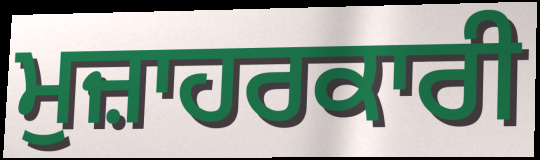
ਮੁਜ਼ਾਹਰਕਾਰੀ